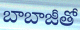
బాబాజీతో